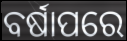
ବର୍ଷାପରେ